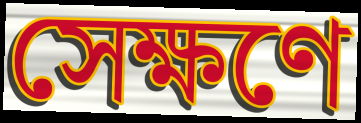
সেক্ষণে